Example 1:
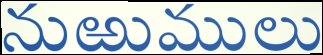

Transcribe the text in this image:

నుఱుములు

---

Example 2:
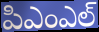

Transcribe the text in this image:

పిఎంఎల్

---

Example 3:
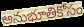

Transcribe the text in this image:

అనుభూతికోసం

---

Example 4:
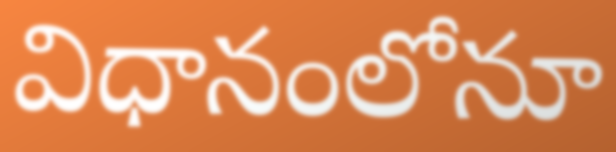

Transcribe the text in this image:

విధానంలోనూ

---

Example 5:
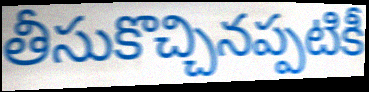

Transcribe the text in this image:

తీసుకొచ్చినప్పటికీ